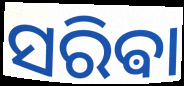
ସରିଵା